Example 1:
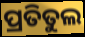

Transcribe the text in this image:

ପ୍ରତିତୁଲ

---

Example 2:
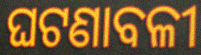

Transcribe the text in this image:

ଘଟଣାବଳୀ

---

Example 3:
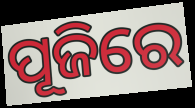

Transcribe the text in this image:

ପୂଜିରେ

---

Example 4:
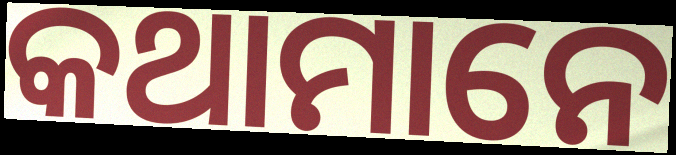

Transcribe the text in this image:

କଥାମାନେ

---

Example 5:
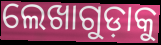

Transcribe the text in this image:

ଲେଖାଗୁଡ଼ାକୁ